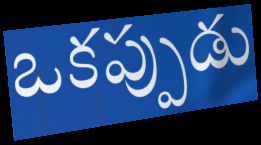
ఒకప్పుడు